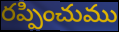
రప్పించుము